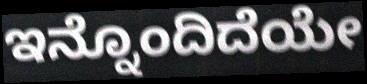
ಇನ್ನೊಂದಿದೆಯೇ